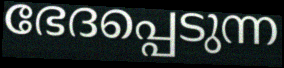
ഭേദപ്പെടുന്ന